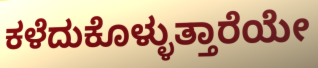
ಕಳೆದುಕೊಳ್ಳುತ್ತಾರೆಯೇ